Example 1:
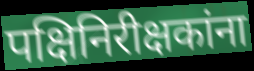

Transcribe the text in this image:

पक्षिनिरीक्षकांना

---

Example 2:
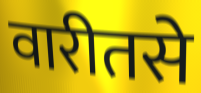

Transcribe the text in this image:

वारीतसे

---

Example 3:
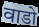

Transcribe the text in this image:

वाडो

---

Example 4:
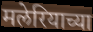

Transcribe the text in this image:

मलेरियाच्या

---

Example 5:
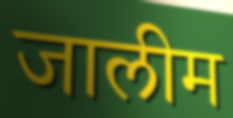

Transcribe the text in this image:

जालीम